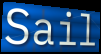
Sail